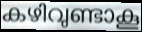
കഴിവുണ്ടാകൂ